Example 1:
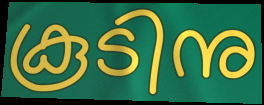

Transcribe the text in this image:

കൂടിനു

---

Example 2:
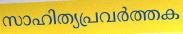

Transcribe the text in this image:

സാഹിത്യപ്രവർത്തക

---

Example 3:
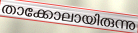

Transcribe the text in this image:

താക്കോലായിരുന്നു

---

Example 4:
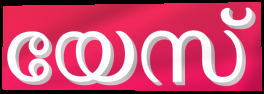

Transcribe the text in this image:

യേസ്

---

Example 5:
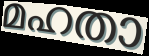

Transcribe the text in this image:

മഹതാ